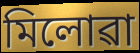
মিলোৱা